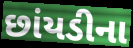
છાંયડીના